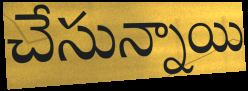
చేసున్నాయి